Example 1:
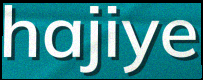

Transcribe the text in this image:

hajiye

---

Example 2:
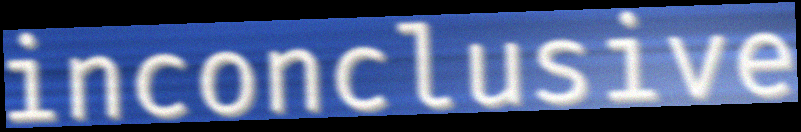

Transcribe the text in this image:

inconclusive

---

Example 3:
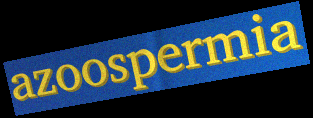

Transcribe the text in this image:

azoospermia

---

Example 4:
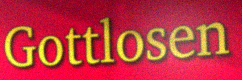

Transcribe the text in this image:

Gottlosen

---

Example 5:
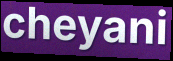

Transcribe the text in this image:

cheyani